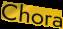
Chora